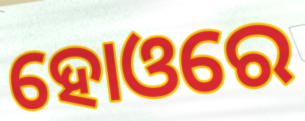
ହୋଓରେ